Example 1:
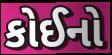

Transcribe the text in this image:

કોઈનો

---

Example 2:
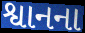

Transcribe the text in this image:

શ્વાનના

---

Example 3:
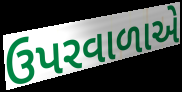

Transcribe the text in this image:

ઉપરવાળાએ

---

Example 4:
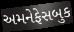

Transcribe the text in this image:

અમનેફેસબુક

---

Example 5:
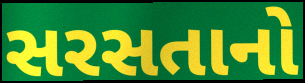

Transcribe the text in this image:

સરસતાનો